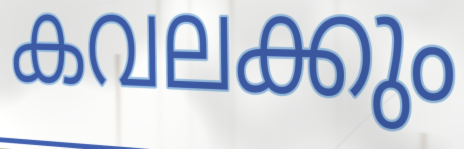
കവലക്കും